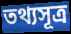
তথ্যসূত্ৰ